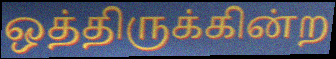
ஒத்திருக்கின்ற